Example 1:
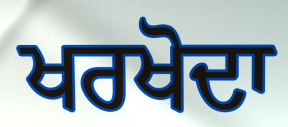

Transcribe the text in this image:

ਖਰਖੋਦਾ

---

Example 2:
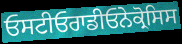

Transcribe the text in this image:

ਓਸਟੀਓਰਾਡੀਓਨੇਕ੍ਰੋਸਿਸ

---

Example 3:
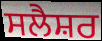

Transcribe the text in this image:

ਸਲੈਸ਼ਰ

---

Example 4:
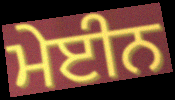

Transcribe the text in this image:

ਮੇਈਨ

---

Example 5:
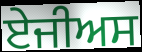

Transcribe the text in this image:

ਏਜੀਅਸ